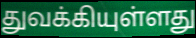
துவக்கியுள்ளது